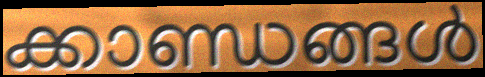
ക്കാണ്ഡങ്ങൾ